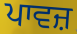
ਪਾਵਜ਼